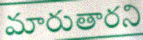
మారుతారని